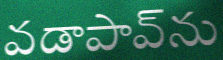
వడాపావ్‌ను